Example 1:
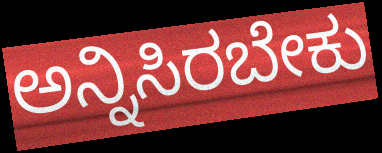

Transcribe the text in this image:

ಅನ್ನಿಸಿರಬೇಕು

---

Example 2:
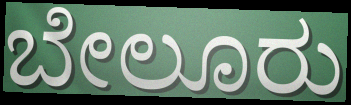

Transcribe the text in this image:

ಬೇಲೂರು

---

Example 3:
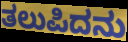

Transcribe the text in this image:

ತಲುಪಿದನು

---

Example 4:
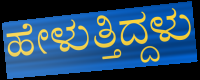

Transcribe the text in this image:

ಹೇಳುತ್ತಿದ್ದಳು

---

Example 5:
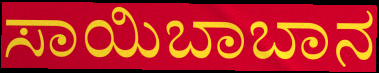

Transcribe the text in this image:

ಸಾಯಿಬಾಬಾನ